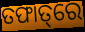
ତଫାତ୍‌ରେ